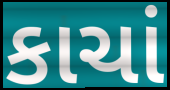
કાચાં